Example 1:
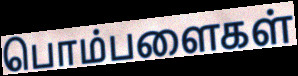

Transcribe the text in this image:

பொம்பளைகள்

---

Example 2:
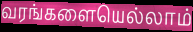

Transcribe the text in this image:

வரங்களையெல்லாம்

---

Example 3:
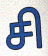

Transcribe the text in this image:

சி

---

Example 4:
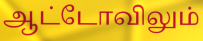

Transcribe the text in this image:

ஆட்டோவிலும்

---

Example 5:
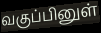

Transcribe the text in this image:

வகுப்பினுள்